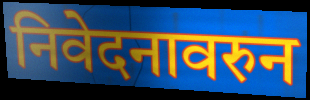
निवेदनावरुन